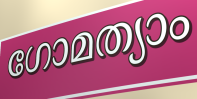
ഗോമത്യാം